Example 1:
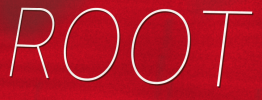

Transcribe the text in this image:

ROOT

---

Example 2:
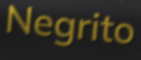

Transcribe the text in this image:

Negrito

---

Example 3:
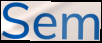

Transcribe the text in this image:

Sem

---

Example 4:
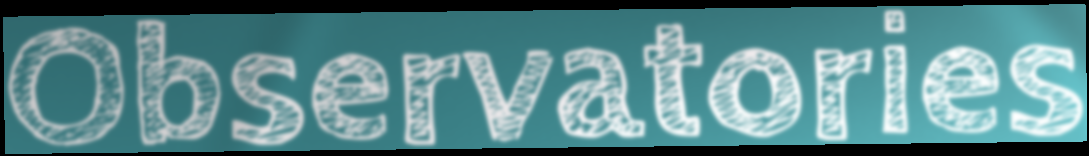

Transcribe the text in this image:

Observatories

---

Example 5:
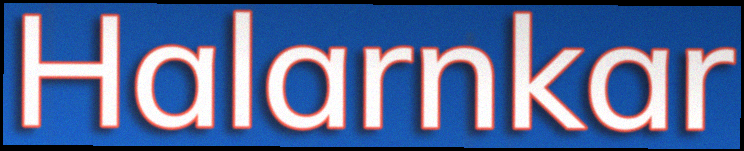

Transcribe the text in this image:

Halarnkar